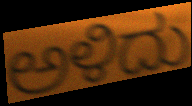
ಅಳಿದು